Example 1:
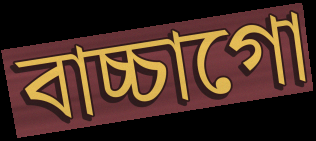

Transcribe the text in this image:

বাচ্চাগো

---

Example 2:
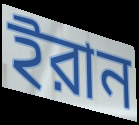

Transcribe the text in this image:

ইরান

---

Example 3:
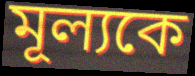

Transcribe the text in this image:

মূল্যকে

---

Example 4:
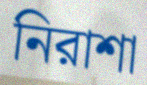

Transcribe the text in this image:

নিরাশা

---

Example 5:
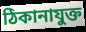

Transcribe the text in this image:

ঠিকানাযুক্ত